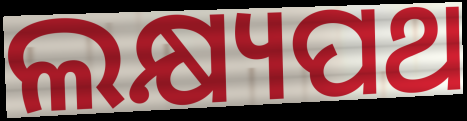
ଲକ୍ଷ୍ୟପଥ